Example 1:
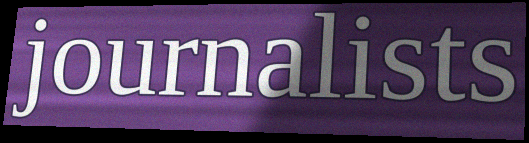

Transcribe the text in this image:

journalists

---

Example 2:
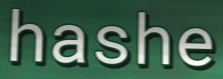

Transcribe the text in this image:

hashe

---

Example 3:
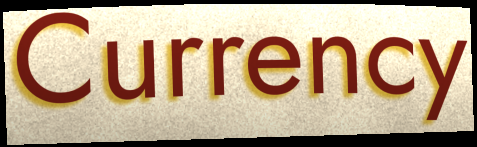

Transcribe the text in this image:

Currency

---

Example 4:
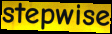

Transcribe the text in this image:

stepwise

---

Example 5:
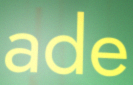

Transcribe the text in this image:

ade